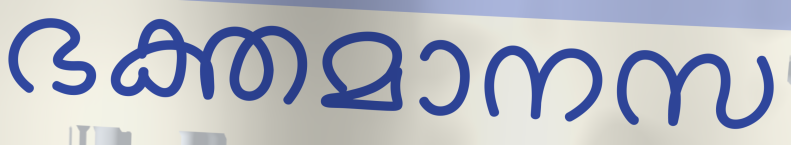
ഭക്തമാനസ